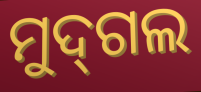
ମୁଦ୍‌ଗଲ